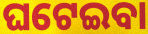
ଘଟେଇବା